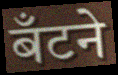
बँटने